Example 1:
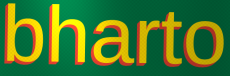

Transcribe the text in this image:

bharto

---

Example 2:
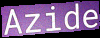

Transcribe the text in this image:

Azide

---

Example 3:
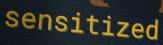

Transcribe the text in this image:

sensitized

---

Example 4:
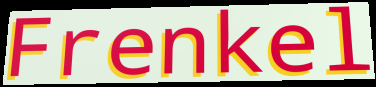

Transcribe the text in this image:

Frenkel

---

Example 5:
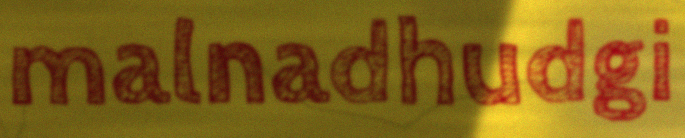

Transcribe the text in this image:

malnadhudgi